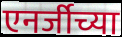
एनर्जीच्या